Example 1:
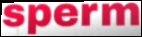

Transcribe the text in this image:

sperm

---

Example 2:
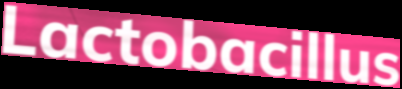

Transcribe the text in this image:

Lactobacillus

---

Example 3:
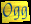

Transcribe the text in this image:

Ogg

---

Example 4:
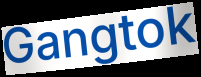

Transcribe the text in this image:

Gangtok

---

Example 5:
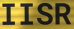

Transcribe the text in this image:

IISR